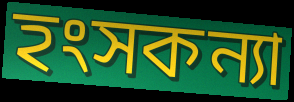
হংসকন্যা